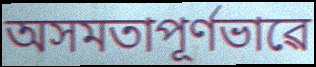
অসমতাপূৰ্ণভাৱে